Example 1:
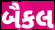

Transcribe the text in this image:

બૈકલ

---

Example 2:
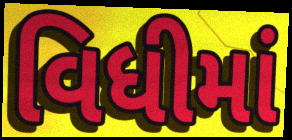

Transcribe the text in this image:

વિધીમાં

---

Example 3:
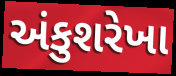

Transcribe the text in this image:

અંકુશરેખા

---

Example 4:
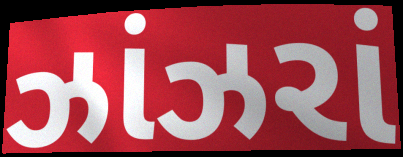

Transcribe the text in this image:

ઝાંઝરાં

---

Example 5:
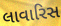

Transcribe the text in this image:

લાવારિસ